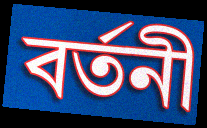
বৰ্তনী